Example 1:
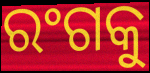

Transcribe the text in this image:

ରଂଗକୁ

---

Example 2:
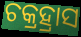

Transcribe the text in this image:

ଚକ୍ରହ୍ରାସ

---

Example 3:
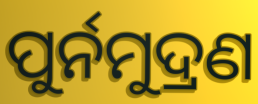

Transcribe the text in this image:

ପୁର୍ନମୁଦ୍ରଣ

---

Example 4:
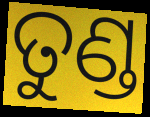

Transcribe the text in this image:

ତୁଣ୍ଡ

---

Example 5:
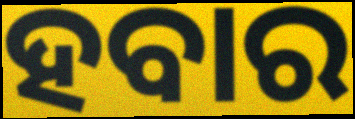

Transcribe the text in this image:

ହବାର